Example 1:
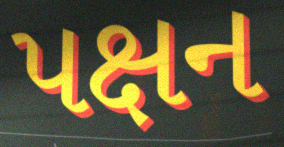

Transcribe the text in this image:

પક્ષન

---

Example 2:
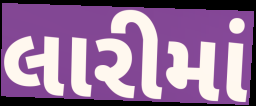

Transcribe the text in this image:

લારીમાં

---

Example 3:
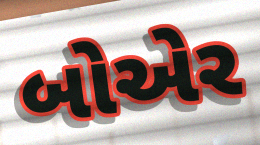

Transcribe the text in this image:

બોએર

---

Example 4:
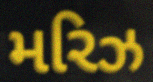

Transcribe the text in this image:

મરિઝ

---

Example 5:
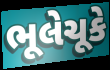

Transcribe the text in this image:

ભૂલેચૂકે